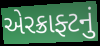
એરક્રાફ્ટનું